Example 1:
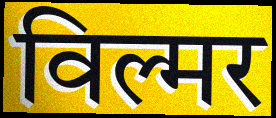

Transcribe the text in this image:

विल्मर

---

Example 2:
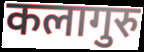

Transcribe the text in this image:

कलागुरु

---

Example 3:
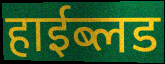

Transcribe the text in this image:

हाईब्लड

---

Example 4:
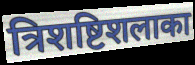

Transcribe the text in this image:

त्रिशष्टिशलाका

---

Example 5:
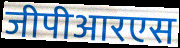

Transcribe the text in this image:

जीपीआरएस